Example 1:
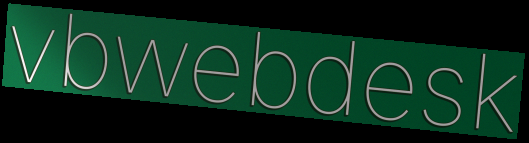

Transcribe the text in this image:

vbwebdesk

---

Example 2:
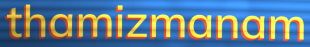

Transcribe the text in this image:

thamizmanam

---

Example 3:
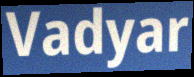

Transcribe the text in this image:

Vadyar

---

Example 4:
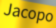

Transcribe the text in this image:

Jacopo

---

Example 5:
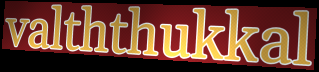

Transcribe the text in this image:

valththukkal